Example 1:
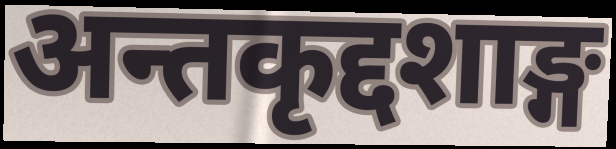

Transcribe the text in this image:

अन्तकृद्दशाङ्ग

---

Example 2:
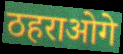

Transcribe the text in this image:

ठहराओगे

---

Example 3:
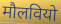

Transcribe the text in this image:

मौलवियो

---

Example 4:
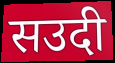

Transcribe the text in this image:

सउदी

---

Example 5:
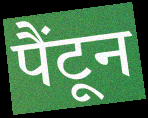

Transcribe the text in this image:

पैंटून